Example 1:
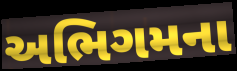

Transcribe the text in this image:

અભિગમના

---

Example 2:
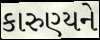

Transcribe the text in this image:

કારુણ્યને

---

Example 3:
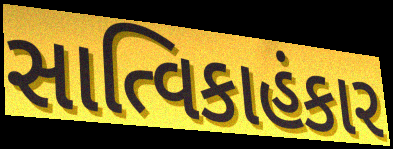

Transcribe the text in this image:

સાત્વિકાહંકાર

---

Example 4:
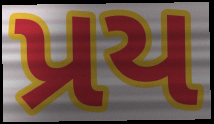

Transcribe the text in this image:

પ્રય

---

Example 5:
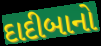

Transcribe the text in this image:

દાદીબાનો